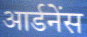
आर्डनेंस